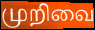
முறிவை